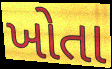
ખોતા